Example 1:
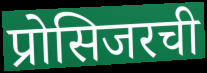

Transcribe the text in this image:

प्रोसिजरची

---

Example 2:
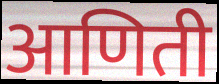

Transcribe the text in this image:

आणिती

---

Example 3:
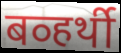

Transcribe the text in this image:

बव्हर्थी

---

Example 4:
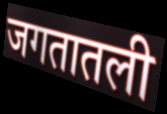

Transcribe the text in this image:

जगतातली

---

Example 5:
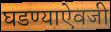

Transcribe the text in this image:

घडण्याऐवजी